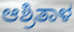
ಆಶ್ರಿತಾಳ